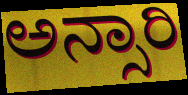
ಅನ್ಸಾರಿ